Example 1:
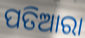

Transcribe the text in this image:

ପତିଆରା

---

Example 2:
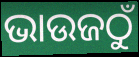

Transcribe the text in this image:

ଭାଉଜଠୁଁ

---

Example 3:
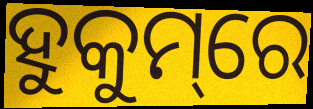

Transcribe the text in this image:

ହୁକୁମ୍‌ରେ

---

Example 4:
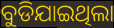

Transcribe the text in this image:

ବୁଡିଯାଇଥିଲା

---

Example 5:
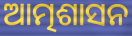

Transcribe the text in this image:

ଆତ୍ମଶାସନ